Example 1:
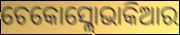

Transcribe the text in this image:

ଚେକୋସ୍ଲୋଭାକିଆର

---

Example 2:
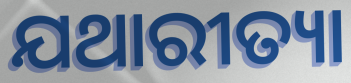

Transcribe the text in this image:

ଯଥାରୀତ୍ୟା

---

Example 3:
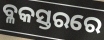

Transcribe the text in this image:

ବ୍ଳକସ୍ତରରେ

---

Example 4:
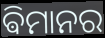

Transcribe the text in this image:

ଵିମାନର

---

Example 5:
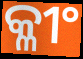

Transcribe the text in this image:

କ୍ଳୀଂ